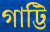
গাট্টি